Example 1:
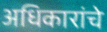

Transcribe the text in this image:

अधिकारांचे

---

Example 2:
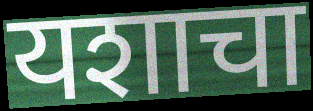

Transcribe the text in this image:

यशाचा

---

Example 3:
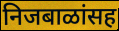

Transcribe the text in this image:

निजबाळांसह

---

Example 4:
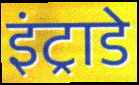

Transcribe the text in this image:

इंट्राडे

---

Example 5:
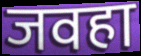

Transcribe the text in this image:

जवहा